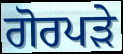
ਗੋਰਪੜੇ